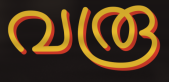
വരൂ